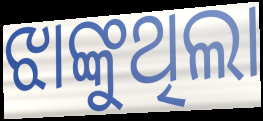
ଝାଙ୍କୁଥିଲା